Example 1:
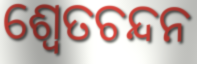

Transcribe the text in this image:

ଶ୍ୱେତଚନ୍ଦନ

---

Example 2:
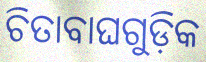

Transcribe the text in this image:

ଚିତାବାଘଗୁଡ଼ିକ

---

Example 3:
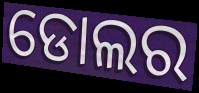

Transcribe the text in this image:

ଡୋଲର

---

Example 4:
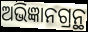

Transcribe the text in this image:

ଅଭିଜ୍ଞାନଗ୍ରନ୍ଥ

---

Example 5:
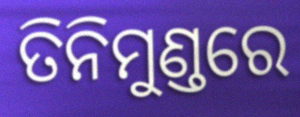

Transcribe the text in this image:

ତିନିମୁଣ୍ଡରେ